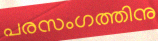
പരസംഗത്തിനു